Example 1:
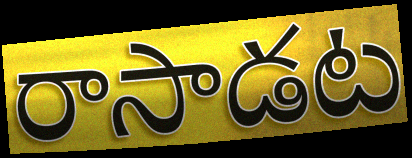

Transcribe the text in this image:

రాసాడట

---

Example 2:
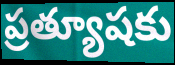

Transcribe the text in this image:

ప్రత్యూషకు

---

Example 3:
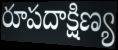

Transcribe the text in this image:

రూపదాక్షిణ్య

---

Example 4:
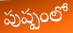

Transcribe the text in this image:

పుష్పంలో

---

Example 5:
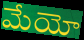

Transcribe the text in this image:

మేయో